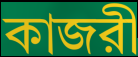
কাজরী